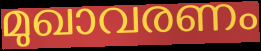
മുഖാവരണം